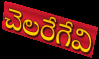
చెలరేగేవి